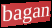
bagan